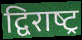
द्विराष्ट्र